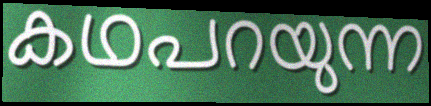
കഥപറയുന്ന